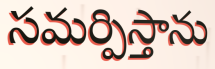
సమర్పిస్తాను